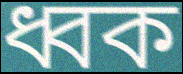
ধ্বক